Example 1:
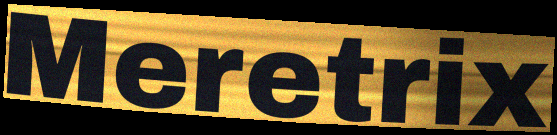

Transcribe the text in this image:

Meretrix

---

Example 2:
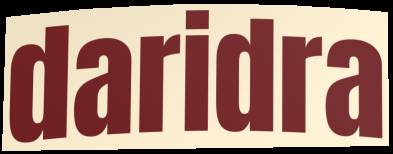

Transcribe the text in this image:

daridra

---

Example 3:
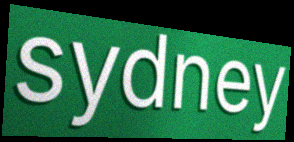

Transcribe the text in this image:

sydney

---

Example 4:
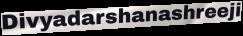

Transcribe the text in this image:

Divyadarshanashreeji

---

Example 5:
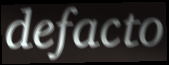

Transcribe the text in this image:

defacto